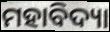
ମହାବିଦ୍ୟା